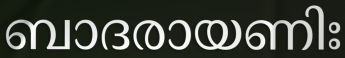
ബാദരായണിഃ